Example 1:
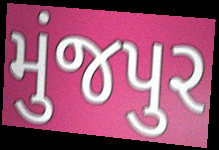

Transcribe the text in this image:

મુંજપુર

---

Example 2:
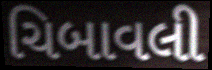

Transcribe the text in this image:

ચિબાવલી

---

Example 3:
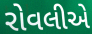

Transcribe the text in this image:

રોવલીએ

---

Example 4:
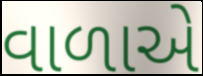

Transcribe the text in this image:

વાળાએ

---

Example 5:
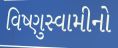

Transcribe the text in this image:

વિષ્ણુસ્વામીનો